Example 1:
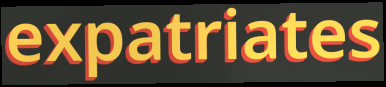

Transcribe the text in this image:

expatriates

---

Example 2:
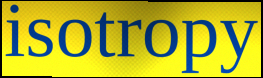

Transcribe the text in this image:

isotropy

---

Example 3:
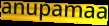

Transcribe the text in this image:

anupamaa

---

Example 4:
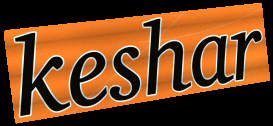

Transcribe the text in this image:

keshar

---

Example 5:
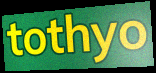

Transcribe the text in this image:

tothyo